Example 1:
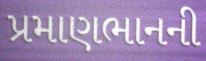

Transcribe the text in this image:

પ્રમાણભાનની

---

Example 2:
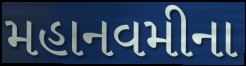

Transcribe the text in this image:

મહાનવમીના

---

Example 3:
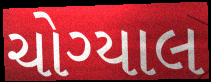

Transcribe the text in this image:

ચોગ્યાલ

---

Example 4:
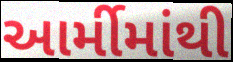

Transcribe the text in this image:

આર્મીમાંથી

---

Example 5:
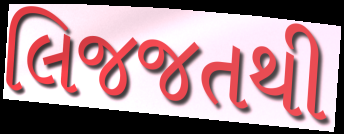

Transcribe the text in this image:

લિજજતથી